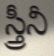
స్త్రీనీ